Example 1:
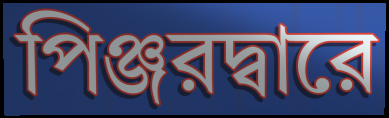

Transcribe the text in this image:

পিঞ্জরদ্বারে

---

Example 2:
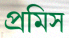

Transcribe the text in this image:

প্রমিস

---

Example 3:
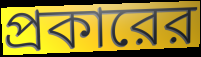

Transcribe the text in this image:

প্রকারের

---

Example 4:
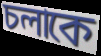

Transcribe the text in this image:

চলাকে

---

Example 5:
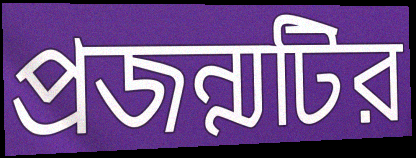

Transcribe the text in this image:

প্রজন্মটির